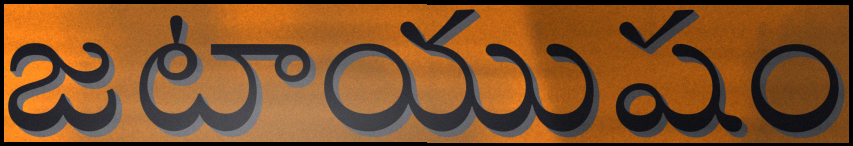
జటాయుషం